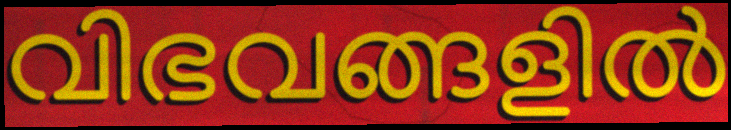
വിഭവങ്ങളിൽ